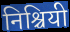
निश्चियी